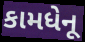
કામધેનૂ